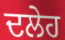
ਦਲੇਹ